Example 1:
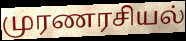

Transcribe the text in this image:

முரணரசியல்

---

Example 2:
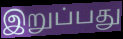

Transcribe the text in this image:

இறுப்பது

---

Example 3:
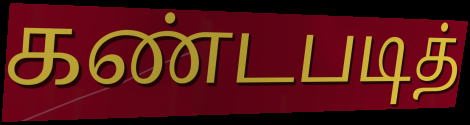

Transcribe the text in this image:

கண்டபடித்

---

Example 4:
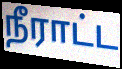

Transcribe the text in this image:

நீராட்ட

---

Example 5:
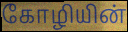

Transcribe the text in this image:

கோழியின்